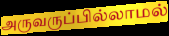
அருவருப்பில்லாமல்